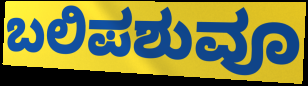
ಬಲಿಪಶುವೂ